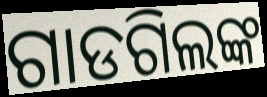
ଗାଡଗିଲଙ୍କ